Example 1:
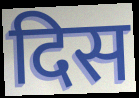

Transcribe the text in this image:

दिस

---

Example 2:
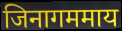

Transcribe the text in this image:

जिनागममाय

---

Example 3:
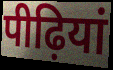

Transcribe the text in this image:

पीढ़ियां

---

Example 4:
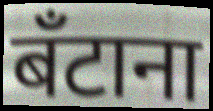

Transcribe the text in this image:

बँटाना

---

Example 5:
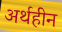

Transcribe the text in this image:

अर्थहीन